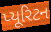
પ્યૂરિટન